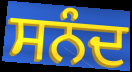
ਸਨੰਦ